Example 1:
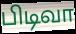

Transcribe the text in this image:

பிடிவா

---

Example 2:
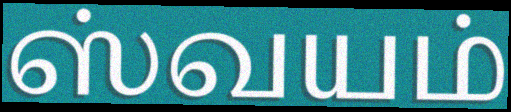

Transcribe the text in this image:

ஸ்வயம்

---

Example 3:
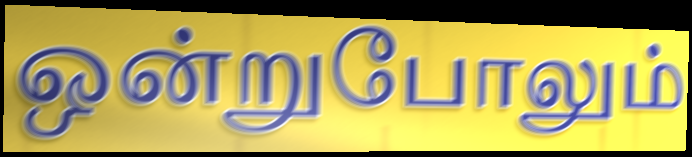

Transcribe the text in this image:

ஒன்றுபோலும்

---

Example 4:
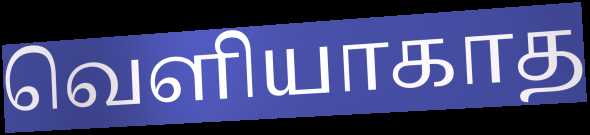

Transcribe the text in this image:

வெளியாகாத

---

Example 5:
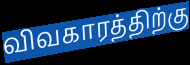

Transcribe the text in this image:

விவகாரத்திற்கு